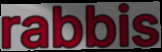
rabbis